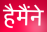
हैमैंने